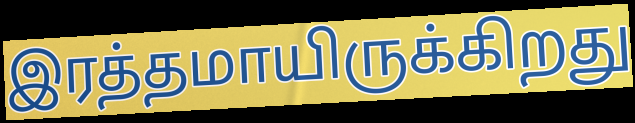
இரத்தமாயிருக்கிறது